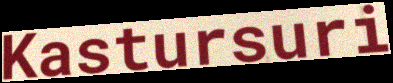
Kastursuri